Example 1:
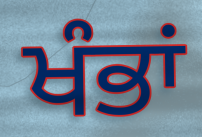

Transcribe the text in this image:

ਖੰਭਾਂ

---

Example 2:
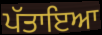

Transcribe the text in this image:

ਪੱਤਾਇਆ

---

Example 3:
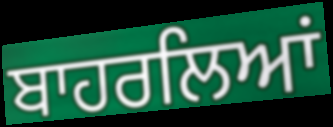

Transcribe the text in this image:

ਬਾਹਰਲਿਆਂ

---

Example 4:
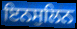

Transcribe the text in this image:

ਇਨਸੁਲਿਨ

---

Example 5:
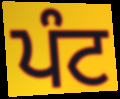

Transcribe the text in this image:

ਪੰਟ